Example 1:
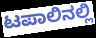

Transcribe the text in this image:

ಟಪಾಲಿನಲ್ಲಿ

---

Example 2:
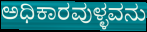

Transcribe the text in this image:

ಅಧಿಕಾರವುಳ್ಳವನು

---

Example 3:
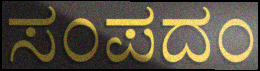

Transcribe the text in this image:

ಸಂಪದಂ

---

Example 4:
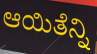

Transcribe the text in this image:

ಆಯಿತೆನ್ನಿ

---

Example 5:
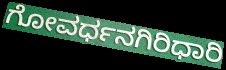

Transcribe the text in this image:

ಗೋವರ್ಧನಗಿರಿಧಾರಿ